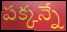
పక్కన్నే